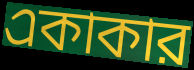
একাকার